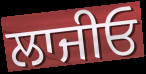
ਲਾਜੀਓ